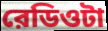
রেডিওটা